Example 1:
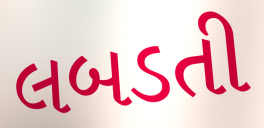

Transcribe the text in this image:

લબડતી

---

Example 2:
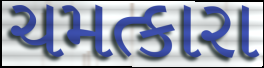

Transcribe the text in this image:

ચમત્કારા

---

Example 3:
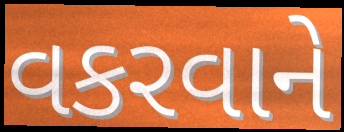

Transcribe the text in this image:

વકરવાને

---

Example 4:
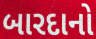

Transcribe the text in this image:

બારદાનો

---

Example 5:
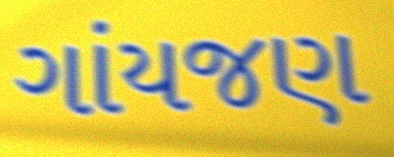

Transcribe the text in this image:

ગાંયજણ